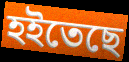
হইতেছে